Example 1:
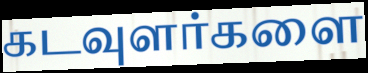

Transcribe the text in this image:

கடவுளர்களை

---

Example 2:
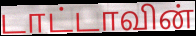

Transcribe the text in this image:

டாட்டாவின்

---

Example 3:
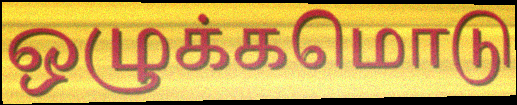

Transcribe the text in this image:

ஒழுக்கமொடு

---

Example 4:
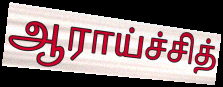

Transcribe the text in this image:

ஆராய்ச்சித்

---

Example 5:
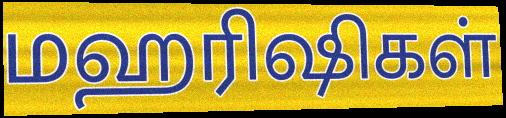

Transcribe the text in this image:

மஹரிஷிகள்